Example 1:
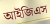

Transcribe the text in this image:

আইজিএস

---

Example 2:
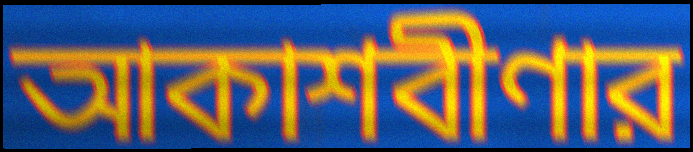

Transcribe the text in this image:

আকাশবীণার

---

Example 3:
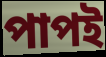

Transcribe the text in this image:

পাপই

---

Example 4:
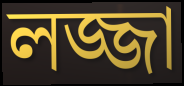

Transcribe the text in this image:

লজ্জা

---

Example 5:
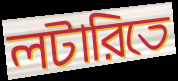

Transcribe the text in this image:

লটারিতে